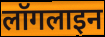
लॉगलाइन